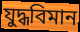
যুদ্ধবিমান